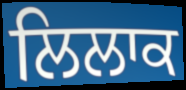
ਲਿਲਾਕ